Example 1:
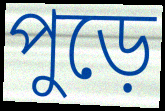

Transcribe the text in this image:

পুড়ে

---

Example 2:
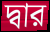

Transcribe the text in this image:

দ্বার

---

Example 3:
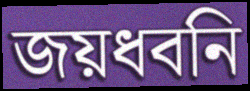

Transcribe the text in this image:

জয়ধবনি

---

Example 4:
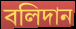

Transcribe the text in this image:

বলিদান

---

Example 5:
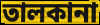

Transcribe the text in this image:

তালকানা